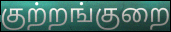
குற்றங்குறை